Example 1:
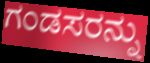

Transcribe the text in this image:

ಗಂಡಸರನ್ನು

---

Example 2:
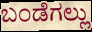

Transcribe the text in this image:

ಬಂಡೆಗಲ್ಲು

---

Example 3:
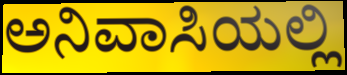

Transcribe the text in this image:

ಅನಿವಾಸಿಯಲ್ಲಿ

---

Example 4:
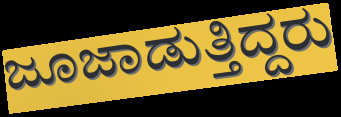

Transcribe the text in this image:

ಜೂಜಾಡುತ್ತಿದ್ದರು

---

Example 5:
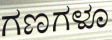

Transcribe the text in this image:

ಗಣಗಳೂ